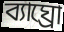
ব্যাঘ্রো